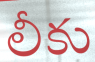
లీకు